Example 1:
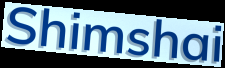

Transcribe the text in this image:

Shimshai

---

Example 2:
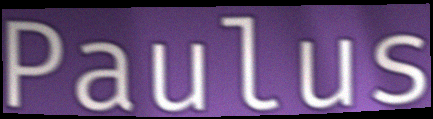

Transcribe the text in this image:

Paulus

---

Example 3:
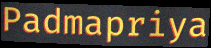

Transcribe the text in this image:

Padmapriya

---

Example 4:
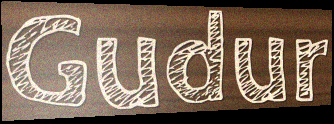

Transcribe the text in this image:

Gudur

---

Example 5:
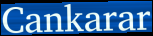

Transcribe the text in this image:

Cankarar